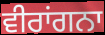
ਵੀਰਾਂਗਨਾ